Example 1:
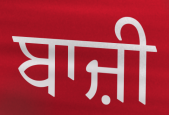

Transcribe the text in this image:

ਬਾਜ਼ੀ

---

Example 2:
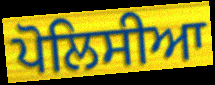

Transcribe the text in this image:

ਪੋਲਿਸੀਆ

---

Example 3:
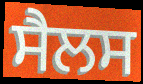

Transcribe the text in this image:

ਸੈਲਸ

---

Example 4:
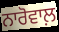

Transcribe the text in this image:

ਨਾਰੋਵਾਲ਼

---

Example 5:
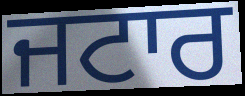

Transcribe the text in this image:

ਜਟਾਰ